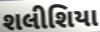
શલીશિયા